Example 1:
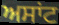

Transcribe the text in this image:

ਅਸਾਂਟ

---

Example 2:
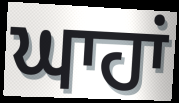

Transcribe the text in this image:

ਘਾਹਾਂ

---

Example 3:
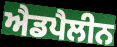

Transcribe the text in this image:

ਐਡਪੈਲੀਨ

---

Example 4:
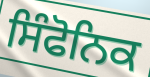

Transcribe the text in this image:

ਸਿੰਫੋਨਿਕ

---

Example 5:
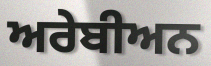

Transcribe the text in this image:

ਅਰੇਬੀਅਨ